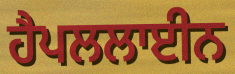
ਹੈਪਲਲਾਈਨ